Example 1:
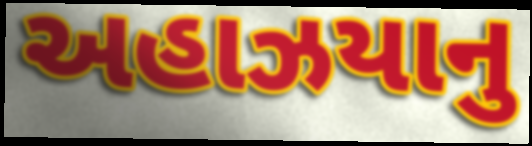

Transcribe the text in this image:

અહાઝયાનુ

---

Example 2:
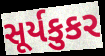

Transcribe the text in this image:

સૂર્યકુકર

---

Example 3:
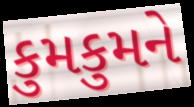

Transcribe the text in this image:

કુમકુમને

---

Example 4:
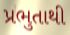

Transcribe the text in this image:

પ્રભુતાથી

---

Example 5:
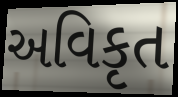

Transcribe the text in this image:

અવિકૃત